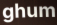
ghum